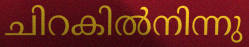
ചിറകിൽനിന്നു